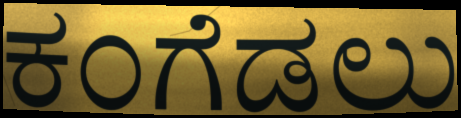
ಕಂಗೆಡಲು